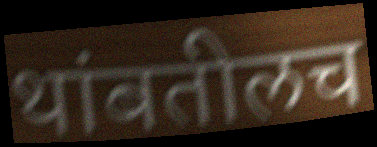
थांबतीलच